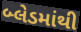
બ્લેડમાંથી